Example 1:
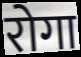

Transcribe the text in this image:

रोगा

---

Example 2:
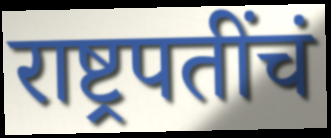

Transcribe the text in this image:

राष्ट्रपतींचं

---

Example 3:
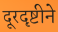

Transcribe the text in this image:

दूरदृष्टीने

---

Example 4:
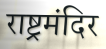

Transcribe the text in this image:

राष्ट्रमंदिर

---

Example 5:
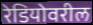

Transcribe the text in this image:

रेडियोवरील